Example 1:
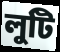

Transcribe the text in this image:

লুটি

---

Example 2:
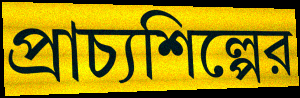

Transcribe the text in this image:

প্রাচ্যশিল্পের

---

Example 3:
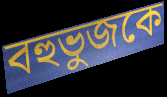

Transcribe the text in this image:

বহুভুজকে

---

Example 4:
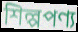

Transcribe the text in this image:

শিল্পপণ্য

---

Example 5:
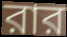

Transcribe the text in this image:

রার